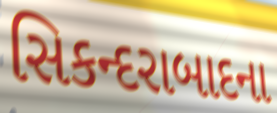
સિકન્દરાબાદના